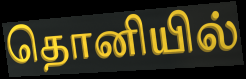
தொனியில்